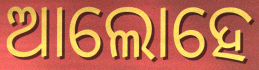
ଆଲୋହେ